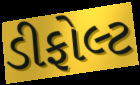
ડીફોલ્ટ